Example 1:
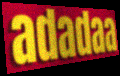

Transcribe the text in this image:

adadaa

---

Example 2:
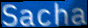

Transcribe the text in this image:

Sacha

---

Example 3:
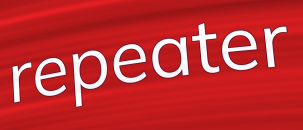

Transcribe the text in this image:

repeater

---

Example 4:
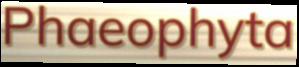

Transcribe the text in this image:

Phaeophyta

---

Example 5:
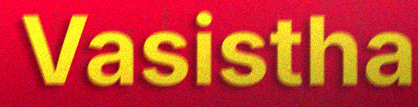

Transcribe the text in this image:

Vasistha